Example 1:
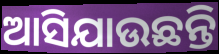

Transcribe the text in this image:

ଆସିଯାଉଛନ୍ତି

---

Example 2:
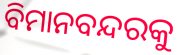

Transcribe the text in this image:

ବିମାନବନ୍ଦରକୁ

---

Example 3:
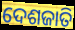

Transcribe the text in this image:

ଦେଶଜାତି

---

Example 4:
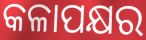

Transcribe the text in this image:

କଳାପକ୍ଷର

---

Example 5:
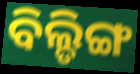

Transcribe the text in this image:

ବିଲ୍ଡିଙ୍ଗ